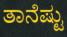
ತಾನೆಷ್ಟು